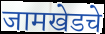
जामखेडचे